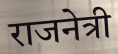
राजनेत्री